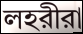
লহরীরা